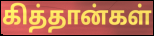
கித்தான்கள்